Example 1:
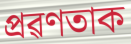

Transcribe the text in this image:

প্ৰৱণতাক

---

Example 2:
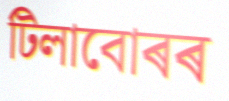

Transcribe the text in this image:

টিলাবোৰৰ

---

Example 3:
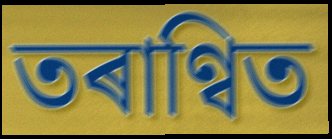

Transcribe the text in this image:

তৰাণ্বিত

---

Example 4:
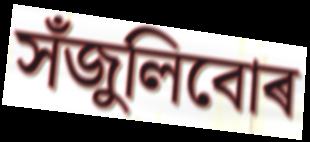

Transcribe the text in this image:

সঁজুলিবোৰ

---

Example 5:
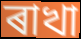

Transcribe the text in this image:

ৰাখা